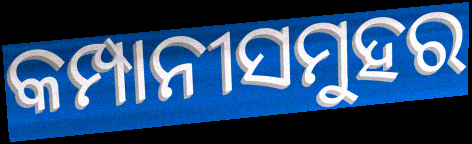
କମ୍ପାନୀସମୁହର